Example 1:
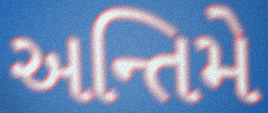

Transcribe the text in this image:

અન્તિમે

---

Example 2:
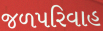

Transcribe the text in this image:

જળપરિવાહ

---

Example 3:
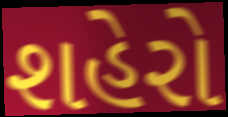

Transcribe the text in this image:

શહેરો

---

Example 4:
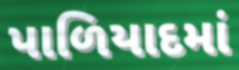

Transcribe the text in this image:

પાળિયાદમાં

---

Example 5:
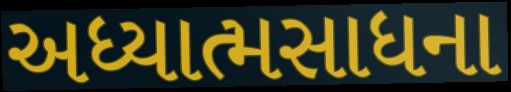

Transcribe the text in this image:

અધ્યાત્મસાધના